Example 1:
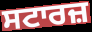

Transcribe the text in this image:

ਸਟਾਰਜ਼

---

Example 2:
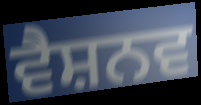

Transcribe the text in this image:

ਵੈਸ਼ਨਵ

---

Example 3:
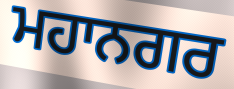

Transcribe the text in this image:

ਮਹਾਨਗਰ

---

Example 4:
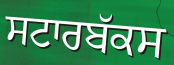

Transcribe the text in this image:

ਸਟਾਰਬੱਕਸ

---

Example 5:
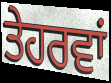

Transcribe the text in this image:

ਤੇਹਰਵਾਂ